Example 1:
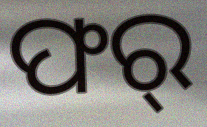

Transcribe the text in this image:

ଫର୍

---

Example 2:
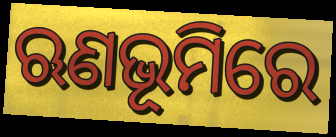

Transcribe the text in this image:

ଋଣଭୂମିରେ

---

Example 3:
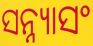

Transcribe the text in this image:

ସନ୍ନ୍ୟାସଂ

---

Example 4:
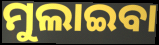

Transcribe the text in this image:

ମୁଲାଇବା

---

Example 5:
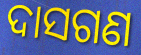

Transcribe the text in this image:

ଦାସଗଣ